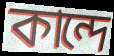
কান্দে